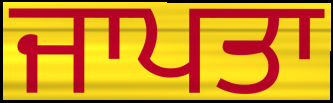
ਜਾਪਤਾ